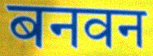
बनवन